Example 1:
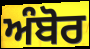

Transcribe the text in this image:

ਅੰਬੋਰ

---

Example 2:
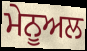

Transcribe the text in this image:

ਮੇਨੂਅਲ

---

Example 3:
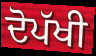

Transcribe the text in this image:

ਦੋਪੱਖੀ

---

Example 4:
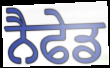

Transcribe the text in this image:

ਨੈਫੇਡ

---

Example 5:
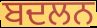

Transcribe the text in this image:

ਬਦਲਨ